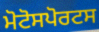
ਮੋਟੋਸਪੋਰਟਸ